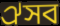
ঐসব